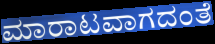
ಮಾರಾಟವಾಗದಂತೆ